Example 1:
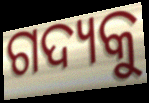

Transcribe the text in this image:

ଗଦ୍ୟକୁ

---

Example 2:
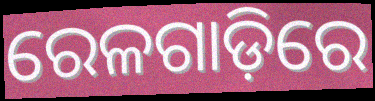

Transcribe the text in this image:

ରେଳଗାଡ଼ିରେ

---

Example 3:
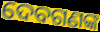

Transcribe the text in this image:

ଦେବଗଣଙ୍କ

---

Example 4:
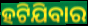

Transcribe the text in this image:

ହଟିଯିବାର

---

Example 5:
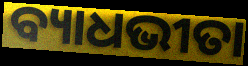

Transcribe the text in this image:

ବ୍ୟାଧଭୀତା